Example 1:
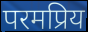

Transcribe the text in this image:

परमप्रिय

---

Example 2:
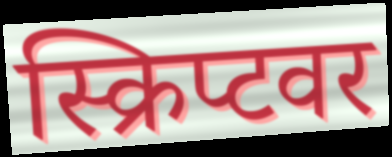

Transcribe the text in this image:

स्क्रिप्टवर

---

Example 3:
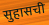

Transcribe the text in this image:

सुहासची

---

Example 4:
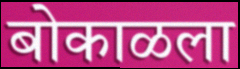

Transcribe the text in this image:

बोकाळला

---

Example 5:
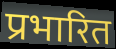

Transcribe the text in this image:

प्रभारित